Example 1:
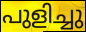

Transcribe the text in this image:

പുളിച്ചു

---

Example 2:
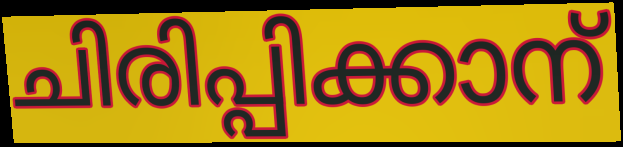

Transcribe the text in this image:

ചിരിപ്പിക്കാന്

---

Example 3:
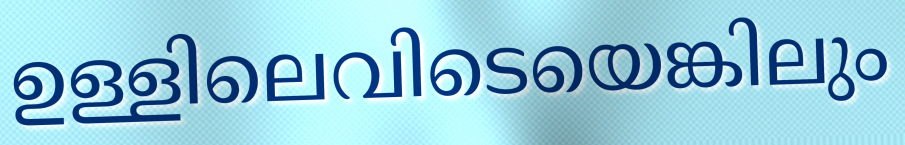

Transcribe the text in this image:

ഉള്ളിലെവിടെയെങ്കിലും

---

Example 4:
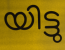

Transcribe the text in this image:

യിട്ടു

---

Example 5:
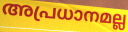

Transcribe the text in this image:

അപ്രധാനമല്ല